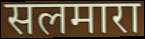
सलमारा